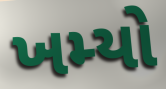
ખમ્યો